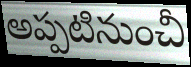
అప్పటినుంచీ